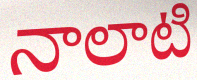
నాలాటి